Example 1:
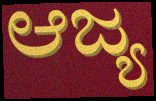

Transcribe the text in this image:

ಆಜ್ಯ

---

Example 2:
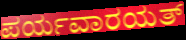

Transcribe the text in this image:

ಪರ್ಯವಾರಯತ್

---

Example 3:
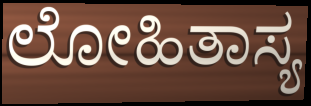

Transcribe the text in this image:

ಲೋಹಿತಾಸ್ಯ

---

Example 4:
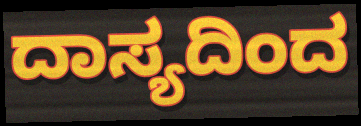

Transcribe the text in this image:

ದಾಸ್ಯದಿಂದ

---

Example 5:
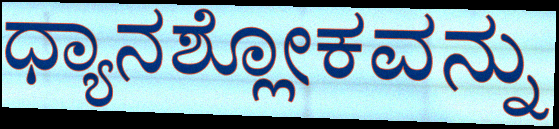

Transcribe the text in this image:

ಧ್ಯಾನಶ್ಲೋಕವನ್ನು